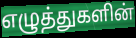
எழுத்துகளின்